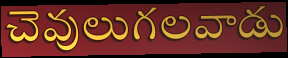
చెవులుగలవాడు